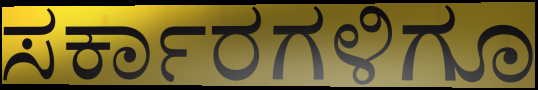
ಸರ್ಕಾರಗಳಿಗೂ